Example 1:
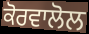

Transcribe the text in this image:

ਕੋਰਵਾਲੋਲ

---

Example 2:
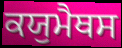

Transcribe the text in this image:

ਕਯੁਮੈਥਸ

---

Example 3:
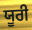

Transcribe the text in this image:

ਯੂਰੀ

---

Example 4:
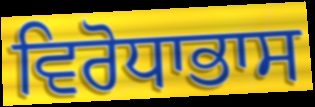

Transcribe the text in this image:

ਵਿਰੋਧਾਭਾਸ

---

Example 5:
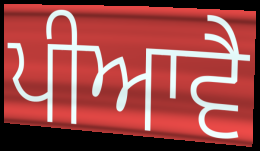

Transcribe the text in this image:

ਪੀਆਵੈ